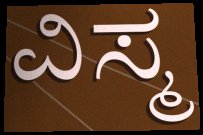
ವಿಸ್ಮ